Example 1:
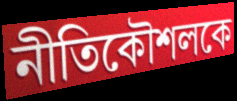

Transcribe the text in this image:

নীতিকৌশলকে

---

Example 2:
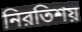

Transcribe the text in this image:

নিরতিশয়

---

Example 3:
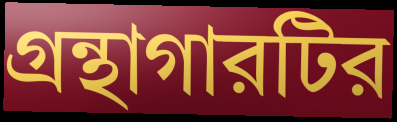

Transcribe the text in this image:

গ্রন্থাগারটির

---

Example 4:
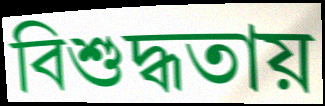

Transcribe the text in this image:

বিশুদ্ধতায়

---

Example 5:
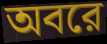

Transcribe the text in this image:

অবরে